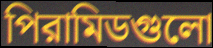
পিরামিডগুলো